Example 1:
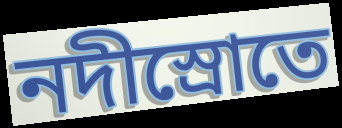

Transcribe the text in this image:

নদীস্রোতে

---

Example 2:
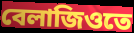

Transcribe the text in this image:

বেলাজিওতে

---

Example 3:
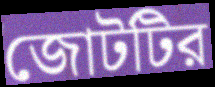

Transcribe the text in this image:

জোটটির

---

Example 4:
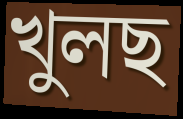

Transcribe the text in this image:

খুলছ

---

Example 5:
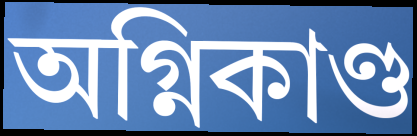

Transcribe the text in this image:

অগ্নিকাণ্ড